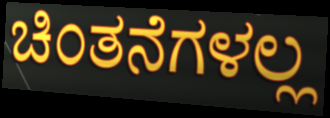
ಚಿಂತನೆಗಳಲ್ಲ